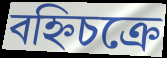
বহ্নিচক্রে